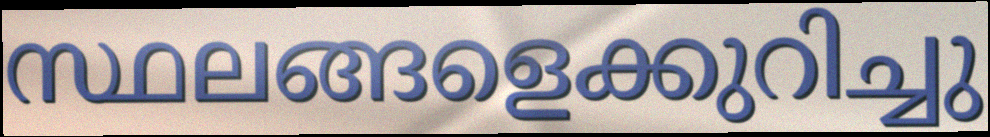
സ്ഥലങ്ങളെക്കുറിച്ചു